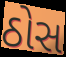
ઠોસ